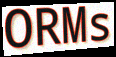
ORMs